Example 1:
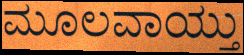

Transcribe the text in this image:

ಮೂಲವಾಯ್ತು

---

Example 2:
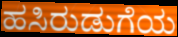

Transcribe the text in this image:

ಹಸಿರುಡುಗೆಯ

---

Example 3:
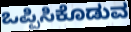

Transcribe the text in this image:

ಒಪ್ಪಿಸಿಕೊಡುವ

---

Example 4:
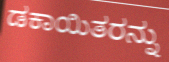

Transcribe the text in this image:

ಡಕಾಯಿತರನ್ನು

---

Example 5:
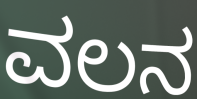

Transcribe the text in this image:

ವಲನ